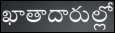
ఖాతాదారుల్లో